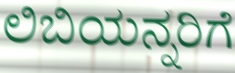
ಲಿಬಿಯನ್ನರಿಗೆ